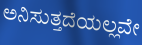
ಅನಿಸುತ್ತದೆಯಲ್ಲವೇ